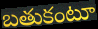
బతుకంటూ